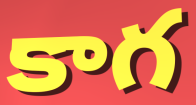
కాగ